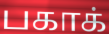
பகாக்